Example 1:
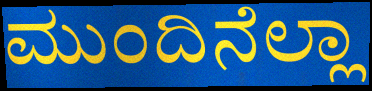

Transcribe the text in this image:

ಮುಂದಿನೆಲ್ಲಾ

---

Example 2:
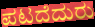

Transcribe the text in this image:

ಪಟದೆದುರು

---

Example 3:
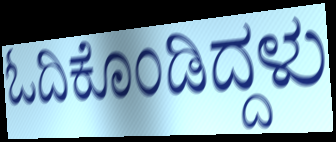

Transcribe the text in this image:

ಓದಿಕೊಂಡಿದ್ದಳು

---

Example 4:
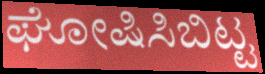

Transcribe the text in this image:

ಘೋಷಿಸಿಬಿಟ್ಟ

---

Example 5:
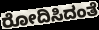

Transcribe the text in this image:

ರೋದಿಸಿದಂತೆ